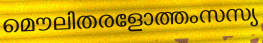
മൌലിതരളോത്തംസസ്യ